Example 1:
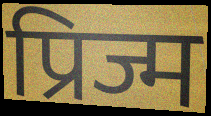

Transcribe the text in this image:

प्रिज्म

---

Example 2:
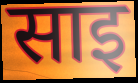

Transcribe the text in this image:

साइ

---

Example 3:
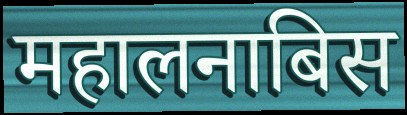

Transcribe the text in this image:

महालनाबिस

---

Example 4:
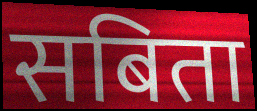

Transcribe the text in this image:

सबिता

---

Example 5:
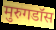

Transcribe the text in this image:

मुरुगडॉस